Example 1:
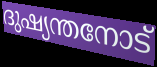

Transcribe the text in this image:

ദുഷ്യന്തനോട്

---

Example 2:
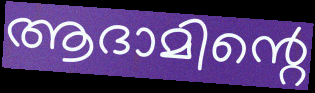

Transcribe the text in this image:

ആദാമിന്റെ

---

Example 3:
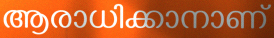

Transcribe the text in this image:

ആരാധിക്കാനാണ്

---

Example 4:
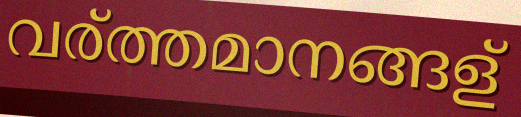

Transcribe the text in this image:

വര്ത്തമാനങ്ങള്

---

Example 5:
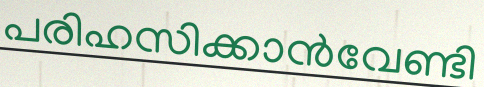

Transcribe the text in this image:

പരിഹസിക്കാൻവേണ്ടി